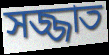
সজ্জাত